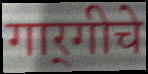
गार्गीचे